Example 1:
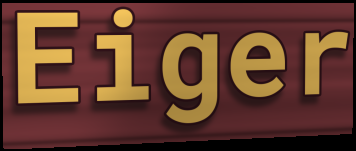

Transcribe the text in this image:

Eiger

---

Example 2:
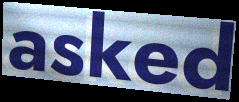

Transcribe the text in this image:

asked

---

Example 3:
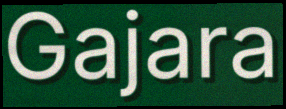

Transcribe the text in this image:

Gajara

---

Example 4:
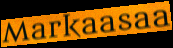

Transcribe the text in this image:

Markaasaa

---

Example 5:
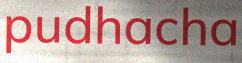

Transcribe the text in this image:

pudhacha